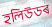
হলিউডৰ